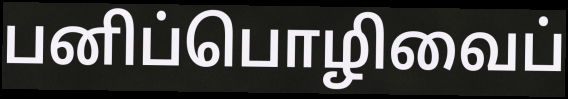
பனிப்பொழிவைப்